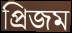
প্রিজম